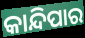
କାନ୍ଦିପାର